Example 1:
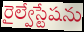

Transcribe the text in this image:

రైల్వేస్టేషను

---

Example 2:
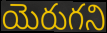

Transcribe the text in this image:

యెరుగని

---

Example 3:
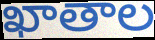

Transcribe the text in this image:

ఖాతాల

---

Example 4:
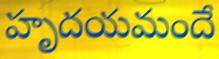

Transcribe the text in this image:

హృదయమందే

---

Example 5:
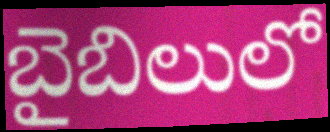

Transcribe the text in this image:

బైబిలులో